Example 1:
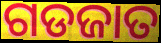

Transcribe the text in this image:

ଗଡଜାତ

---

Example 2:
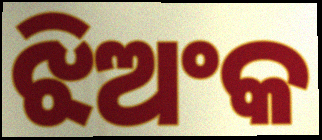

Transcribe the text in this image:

ଝିଅଂକ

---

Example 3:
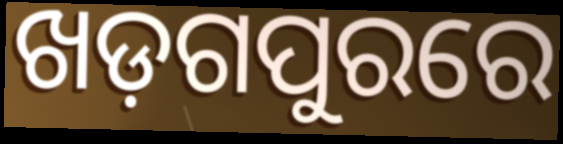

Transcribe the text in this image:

ଖଡ଼ଗପୁରରେ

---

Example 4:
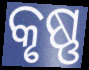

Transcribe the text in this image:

କୃଷ୍ଣ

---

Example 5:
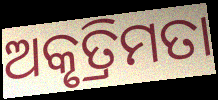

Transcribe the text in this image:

ଅକୃତ୍ରିମତା